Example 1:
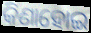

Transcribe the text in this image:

କିଣାହୋଇ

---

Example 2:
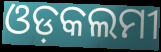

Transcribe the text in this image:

ଓଡ଼କଲମୀ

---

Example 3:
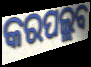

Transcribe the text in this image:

କରପଲ୍ଲବ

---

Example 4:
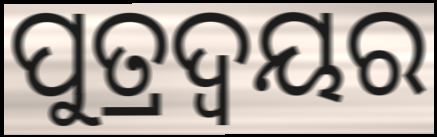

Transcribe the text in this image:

ପୁତ୍ରଦ୍ୱୟର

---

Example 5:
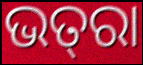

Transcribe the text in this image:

ଭତ୍‌ରା